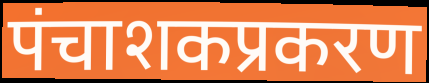
पंचाशकप्रकरण